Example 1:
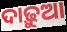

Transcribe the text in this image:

ଦାଢ଼ୁଆ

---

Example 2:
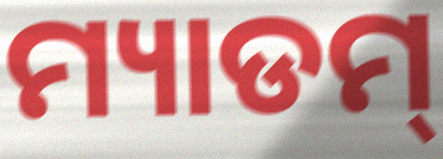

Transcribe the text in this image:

ମ୍ୟାଡମ୍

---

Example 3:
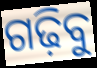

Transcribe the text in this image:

ଗଢ଼ିବୁ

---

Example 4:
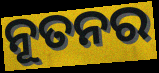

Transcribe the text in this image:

ନୂତନର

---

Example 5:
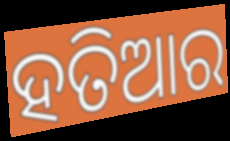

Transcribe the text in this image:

ହତିଆର